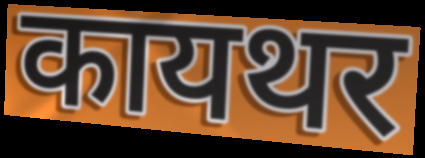
कायथर